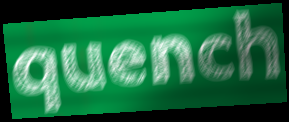
quench